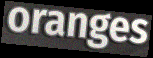
oranges